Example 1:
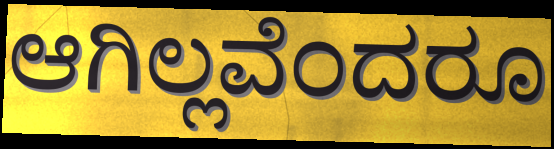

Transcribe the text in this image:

ಆಗಿಲ್ಲವೆಂದರೂ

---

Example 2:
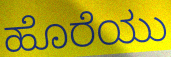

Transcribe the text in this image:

ಹೊರೆಯು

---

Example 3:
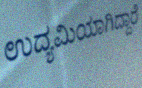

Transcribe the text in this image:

ಉದ್ಯಮಿಯಾಗಿದ್ದಾರೆ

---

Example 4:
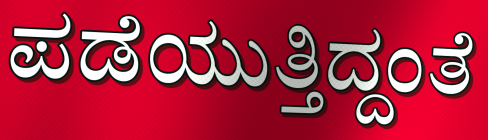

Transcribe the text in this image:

ಪಡೆಯುತ್ತಿದ್ದಂತೆ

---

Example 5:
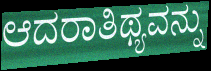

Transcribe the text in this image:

ಆದರಾತಿಥ್ಯವನ್ನು